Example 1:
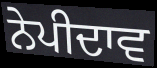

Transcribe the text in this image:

ਨੇਪੀਦਾਵ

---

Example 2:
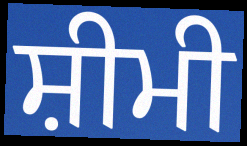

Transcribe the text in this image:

ਸ਼ੀਮੀ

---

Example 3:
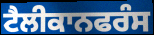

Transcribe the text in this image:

ਟੈਲੀਕਾਨਫਰੰਸ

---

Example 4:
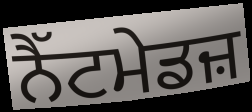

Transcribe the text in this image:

ਨੈੱਟਮੇਡਜ਼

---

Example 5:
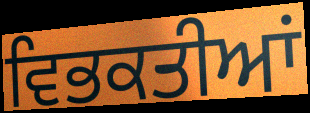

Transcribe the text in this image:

ਵਿਭਕਤੀਆਂ